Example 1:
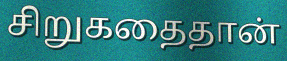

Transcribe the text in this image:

சிறுகதைதான்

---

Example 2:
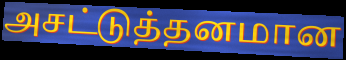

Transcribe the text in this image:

அசட்டுத்தனமான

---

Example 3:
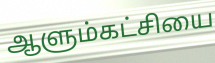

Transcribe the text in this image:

ஆளும்கட்சியை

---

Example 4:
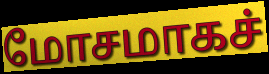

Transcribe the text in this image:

மோசமாகச்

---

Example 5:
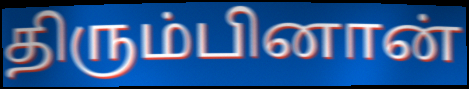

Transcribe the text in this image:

திரும்பினான்